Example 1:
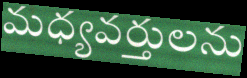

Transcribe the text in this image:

మధ్యవర్తులను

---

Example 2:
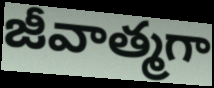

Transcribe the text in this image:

జీవాత్మగా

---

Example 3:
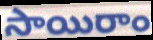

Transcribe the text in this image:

సాయిరాం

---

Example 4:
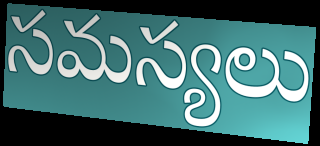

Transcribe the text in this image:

సమస్యలు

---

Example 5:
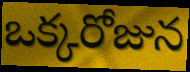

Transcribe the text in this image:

ఒక్కరోజున